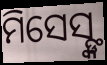
ମିସେସ୍ଙ୍କ